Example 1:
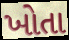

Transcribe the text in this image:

ખોતા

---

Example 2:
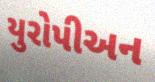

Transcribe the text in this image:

યુરોપીઅન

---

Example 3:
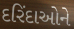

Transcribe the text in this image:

દરિંદાઓને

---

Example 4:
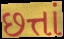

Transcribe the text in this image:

છત્તાં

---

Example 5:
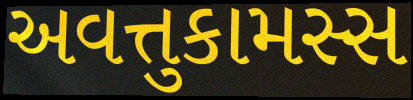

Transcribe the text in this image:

અવત્તુકામસ્સ